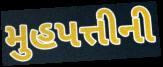
મુહપત્તીની